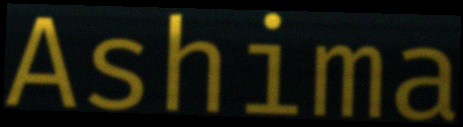
Ashima